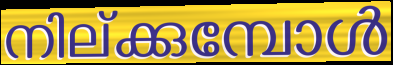
നില്ക്കുമ്പോൾ